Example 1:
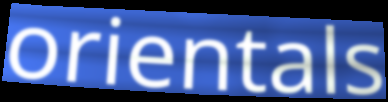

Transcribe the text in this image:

orientals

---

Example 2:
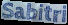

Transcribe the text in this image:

Sabitri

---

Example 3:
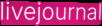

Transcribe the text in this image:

livejournal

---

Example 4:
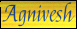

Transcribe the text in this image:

Agnivesh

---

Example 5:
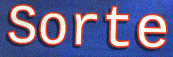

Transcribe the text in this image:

Sorte